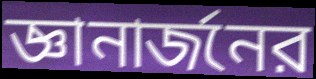
জ্ঞানার্জনের